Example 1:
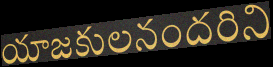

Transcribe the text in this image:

యాజకులనందరిని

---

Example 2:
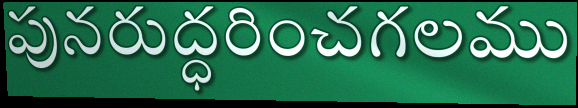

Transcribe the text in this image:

పునరుద్ధరించగలము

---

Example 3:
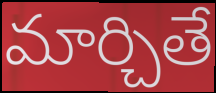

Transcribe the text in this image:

మార్చితే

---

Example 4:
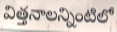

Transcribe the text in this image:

విత్తనాలన్నింటిలో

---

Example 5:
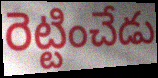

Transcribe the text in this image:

రెట్టించేడు